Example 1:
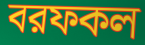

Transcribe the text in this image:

বরফকল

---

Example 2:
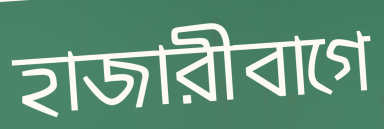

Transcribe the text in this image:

হাজারীবাগে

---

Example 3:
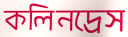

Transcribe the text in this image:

কলিনদ্রেস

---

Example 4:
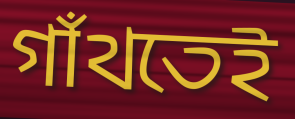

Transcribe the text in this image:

গাঁথতেই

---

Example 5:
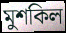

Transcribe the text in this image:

মুশকিল